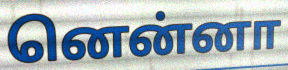
னென்னா